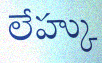
లేహ్కు